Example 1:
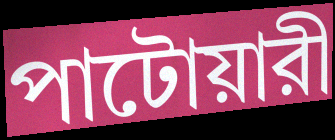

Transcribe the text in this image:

পাটোয়ারী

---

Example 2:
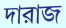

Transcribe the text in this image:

দারাজ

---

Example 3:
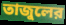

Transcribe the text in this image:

তাজুলের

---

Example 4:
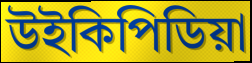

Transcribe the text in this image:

উইকিপিডিয়া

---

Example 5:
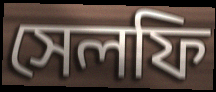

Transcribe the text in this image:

সেলফি